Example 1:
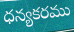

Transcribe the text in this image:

ధన్యకరము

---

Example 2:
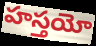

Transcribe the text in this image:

హస్తయో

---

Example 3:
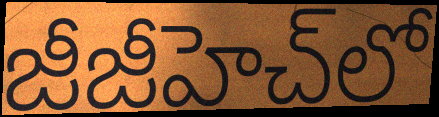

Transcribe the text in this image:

జీజీహెచ్‌లో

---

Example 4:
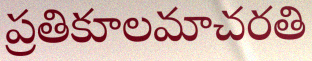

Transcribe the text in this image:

ప్రతికూలమాచరతి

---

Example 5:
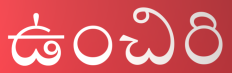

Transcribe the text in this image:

ఉంచిరి